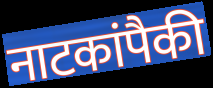
नाटकांपैकी